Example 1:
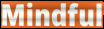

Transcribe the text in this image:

Mindful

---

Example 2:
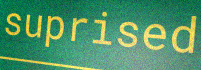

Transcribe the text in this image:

suprised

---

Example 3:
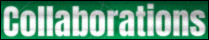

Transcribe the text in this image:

Collaborations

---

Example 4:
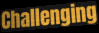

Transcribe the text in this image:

Challenging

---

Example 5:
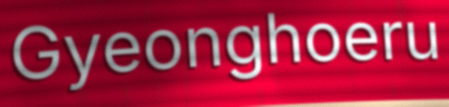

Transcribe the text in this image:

Gyeonghoeru